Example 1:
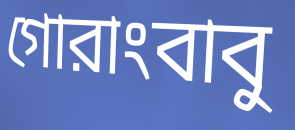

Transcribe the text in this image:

গোরাংবাবু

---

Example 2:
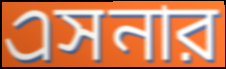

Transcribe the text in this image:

এসনার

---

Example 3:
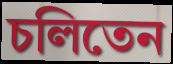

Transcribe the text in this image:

চলিতেন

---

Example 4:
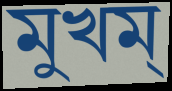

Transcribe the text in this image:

মুখম্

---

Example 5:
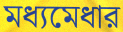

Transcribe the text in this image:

মধ্যমেধার